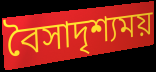
বৈসাদৃশ্যময়